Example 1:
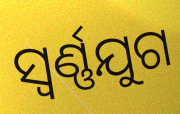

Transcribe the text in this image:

ସ୍ଵର୍ଣ୍ଣଯୁଗ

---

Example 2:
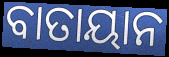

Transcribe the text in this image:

ବାତାୟାନ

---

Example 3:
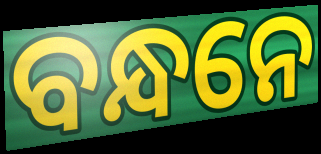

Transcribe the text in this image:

ବନ୍ଧନେ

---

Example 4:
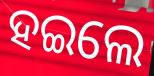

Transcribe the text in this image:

ହଇଲେ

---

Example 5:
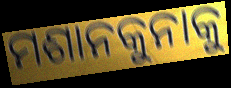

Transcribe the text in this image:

ମଶାନକୁନାକୁ